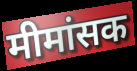
मीमांसक